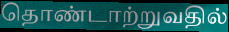
தொண்டாற்றுவதில்